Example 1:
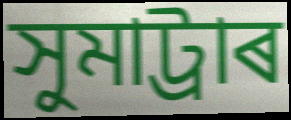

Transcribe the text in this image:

সুমাট্ৰাৰ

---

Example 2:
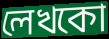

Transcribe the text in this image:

লেখকো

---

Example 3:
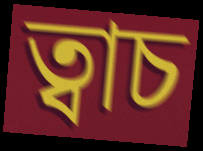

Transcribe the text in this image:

ত্বাচ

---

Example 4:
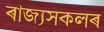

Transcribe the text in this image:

ৰাজ্যসকলৰ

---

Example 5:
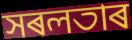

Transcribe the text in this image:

সৰলতাৰ